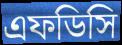
এফডিসি